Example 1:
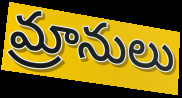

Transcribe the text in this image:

మ్రానులు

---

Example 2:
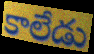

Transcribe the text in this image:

కాలేడు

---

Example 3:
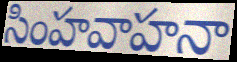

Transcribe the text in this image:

సింహవాహనా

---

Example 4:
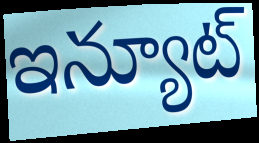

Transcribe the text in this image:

ఇన్యూట్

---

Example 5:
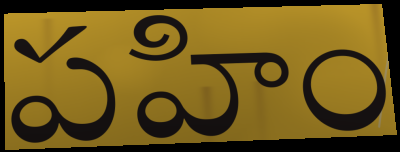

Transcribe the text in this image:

పహిం